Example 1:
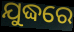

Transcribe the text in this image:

ଯୁଦ୍ଧରେ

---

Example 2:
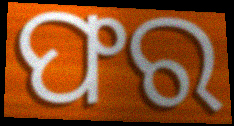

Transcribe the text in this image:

ଫର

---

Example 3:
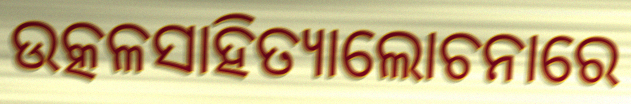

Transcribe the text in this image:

ଉତ୍କଳସାହିତ୍ୟାଲୋଚନାରେ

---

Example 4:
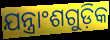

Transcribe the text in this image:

ଯନ୍ତ୍ରାଂଶଗୁଡ଼ିକ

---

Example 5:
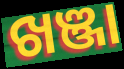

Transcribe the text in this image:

ଖଞ୍ଜା